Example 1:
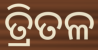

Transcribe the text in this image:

ତ୍ରିତଳ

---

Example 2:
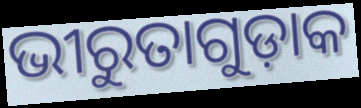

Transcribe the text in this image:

ଭୀରୁତାଗୁଡ଼ାକ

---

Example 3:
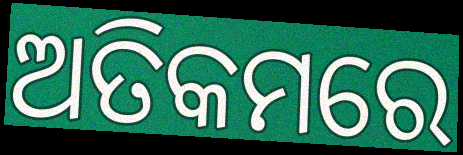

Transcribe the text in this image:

ଅତିକମରେ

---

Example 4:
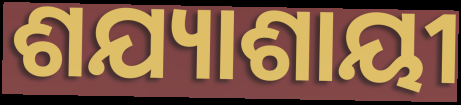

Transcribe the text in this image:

ଶଯ୍ୟାଶାୟୀ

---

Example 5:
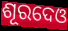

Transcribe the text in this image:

ଶୂରଦେଓ